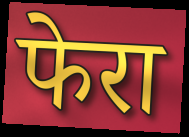
फेरा